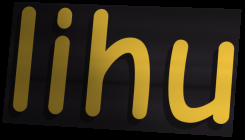
lihu